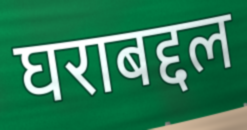
घराबद्दल